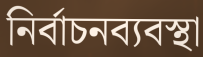
নির্বাচনব্যবস্থা